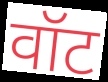
वॉट